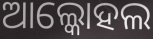
ଆଲ୍କୋହଲ